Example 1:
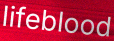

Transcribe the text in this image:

lifeblood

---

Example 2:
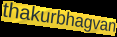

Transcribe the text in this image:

thakurbhagvan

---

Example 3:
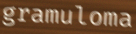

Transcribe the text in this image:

gramuloma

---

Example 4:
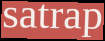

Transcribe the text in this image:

satrap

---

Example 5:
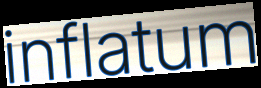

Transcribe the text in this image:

inflatum